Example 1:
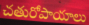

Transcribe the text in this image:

చతురోపాయాలు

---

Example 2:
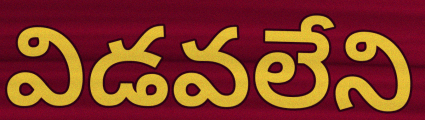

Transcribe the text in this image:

విడవలేని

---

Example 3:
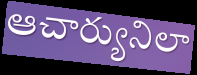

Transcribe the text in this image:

ఆచార్యునిలా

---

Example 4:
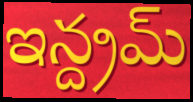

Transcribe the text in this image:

ఇన్ద్రమ్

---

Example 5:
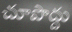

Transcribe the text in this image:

చూపొద్దు